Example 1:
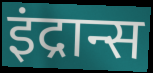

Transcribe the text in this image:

इंद्रान्स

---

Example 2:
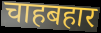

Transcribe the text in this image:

चाहबहार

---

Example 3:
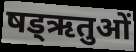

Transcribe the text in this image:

षड्ऋतुओं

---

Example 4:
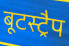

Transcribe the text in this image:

बूटस्ट्रैप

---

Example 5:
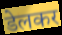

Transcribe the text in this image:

डेलकर